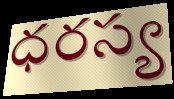
ధరస్య